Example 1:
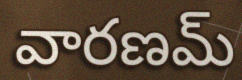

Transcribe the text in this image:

వారణమ్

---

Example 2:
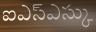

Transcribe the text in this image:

ఐఎస్ఎస్కు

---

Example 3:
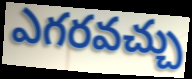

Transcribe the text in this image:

ఎగరవచ్చు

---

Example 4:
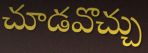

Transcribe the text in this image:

చూడవొచ్చు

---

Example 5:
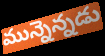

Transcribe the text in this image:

మున్నెన్నడు